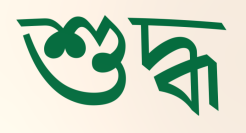
শুদ্ধ